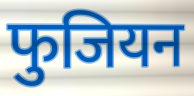
फुजियन